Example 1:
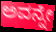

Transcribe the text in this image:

ಅವನ್ನೇ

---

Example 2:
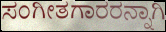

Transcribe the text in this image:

ಸಂಗೀತಗಾರರನ್ನಾಗಿ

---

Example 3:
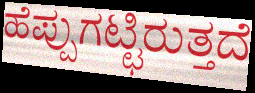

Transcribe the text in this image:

ಹೆಪ್ಪುಗಟ್ಟಿರುತ್ತದೆ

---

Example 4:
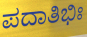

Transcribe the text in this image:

ಪದಾತಿಭಿಃ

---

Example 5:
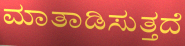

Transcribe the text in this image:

ಮಾತಾಡಿಸುತ್ತದೆ